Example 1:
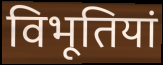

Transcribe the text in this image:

विभूतियां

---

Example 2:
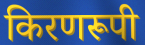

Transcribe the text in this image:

किरणरूपी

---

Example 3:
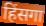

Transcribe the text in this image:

हिंसगा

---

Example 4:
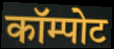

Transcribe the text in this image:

कॉम्पोट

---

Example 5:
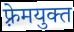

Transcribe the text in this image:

फ़्रेमयुक्त